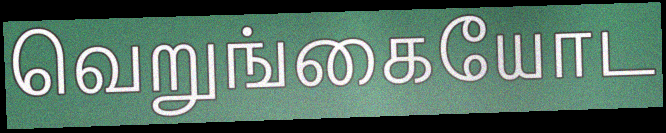
வெறுங்கையோட